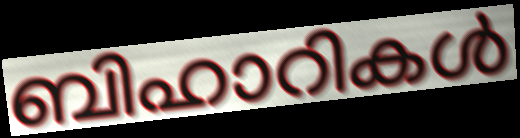
ബിഹാറികൾ